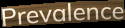
Prevalence